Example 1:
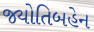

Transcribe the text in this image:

જ્યોતિબહેન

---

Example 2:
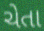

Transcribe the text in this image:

ચેતા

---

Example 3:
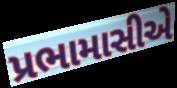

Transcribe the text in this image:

પ્રભામાસીએ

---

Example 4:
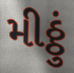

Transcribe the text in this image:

મીઠ્ઠું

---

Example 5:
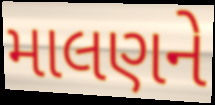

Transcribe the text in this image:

માલણને